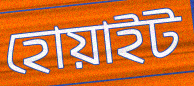
হোয়াইট